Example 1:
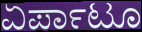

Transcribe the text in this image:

ಏರ್ಪಾಟೂ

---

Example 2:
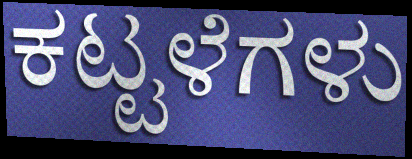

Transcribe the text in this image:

ಕಟ್ಟಳೆಗಳು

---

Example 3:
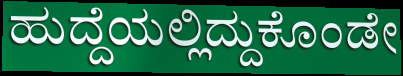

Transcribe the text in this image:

ಹುದ್ದೆಯಲ್ಲಿದ್ದುಕೊಂಡೇ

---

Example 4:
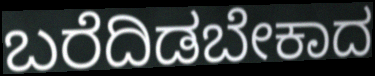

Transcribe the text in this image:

ಬರೆದಿಡಬೇಕಾದ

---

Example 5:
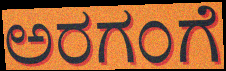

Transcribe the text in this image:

ಅರಗಂಗೆ